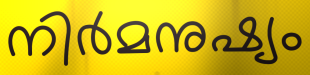
നിർമനുഷ്യം